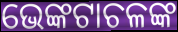
ଭେଙ୍କଟାଚଳଙ୍କ